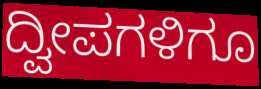
ದ್ವೀಪಗಳಿಗೂ